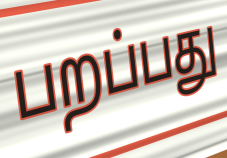
பறப்பது